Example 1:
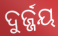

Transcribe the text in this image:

ଦୁର୍ଜ୍ଜୟ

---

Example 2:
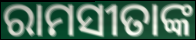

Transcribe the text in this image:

ରାମସୀତାଙ୍କ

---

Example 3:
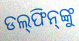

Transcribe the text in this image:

ଡଲ୍‌ଫିନ୍‌ଙ୍କୁ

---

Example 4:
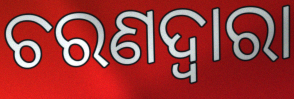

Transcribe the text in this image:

ଚରଣଦ୍ୱାରା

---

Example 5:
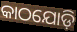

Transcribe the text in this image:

କାଠଯୋଡ଼ି